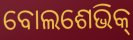
ବୋଲଶେଭିକ୍